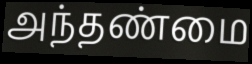
அந்தண்மை